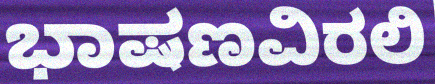
ಭಾಷಣವಿರಲಿ